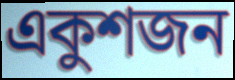
একুশজন